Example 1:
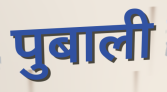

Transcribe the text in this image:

पुबाली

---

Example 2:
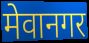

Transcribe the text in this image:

मेवानगर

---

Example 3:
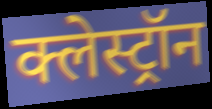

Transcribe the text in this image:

क्लेस्ट्रॉन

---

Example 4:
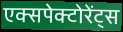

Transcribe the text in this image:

एक्सपेक्टोरेंट्स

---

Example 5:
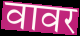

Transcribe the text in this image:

वावर